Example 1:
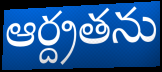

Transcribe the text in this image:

ఆర్ద్రతను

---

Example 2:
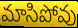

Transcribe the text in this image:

మాసిపోవు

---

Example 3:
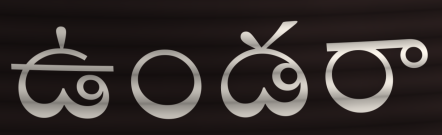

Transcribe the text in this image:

ఉండరా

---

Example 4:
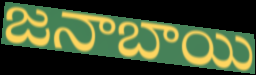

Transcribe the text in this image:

జనాబాయి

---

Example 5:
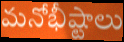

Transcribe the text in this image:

మనోభీష్టాలు